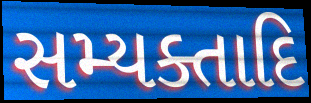
સમ્યક્તાદિ